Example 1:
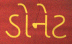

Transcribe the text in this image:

ડોનેટ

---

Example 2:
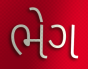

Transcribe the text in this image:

ભેગ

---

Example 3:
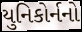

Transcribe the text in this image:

યુનિકોર્નનો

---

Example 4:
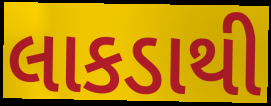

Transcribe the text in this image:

લાકડાથી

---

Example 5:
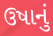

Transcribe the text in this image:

ઉષાનું